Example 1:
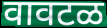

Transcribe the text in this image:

वावटळ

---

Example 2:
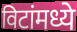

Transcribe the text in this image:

विटांमध्ये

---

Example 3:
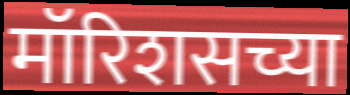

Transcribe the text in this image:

मॉरिशसच्या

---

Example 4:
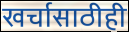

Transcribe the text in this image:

खर्चासाठीही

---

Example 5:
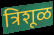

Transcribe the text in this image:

त्रिशूळ